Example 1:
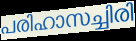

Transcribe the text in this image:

പരിഹാസച്ചിരി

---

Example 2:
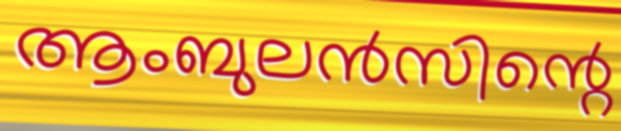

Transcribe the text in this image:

ആംബുലൻസിന്റെ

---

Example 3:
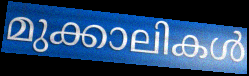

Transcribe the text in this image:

മുക്കാലികൾ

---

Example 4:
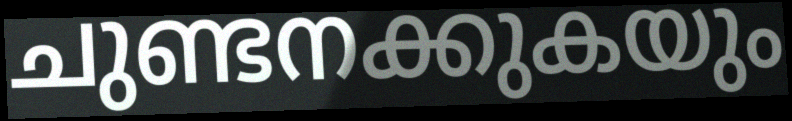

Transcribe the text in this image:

ചുണ്ടനക്കുകയും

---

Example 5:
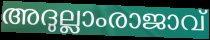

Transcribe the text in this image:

അദുല്ലാംരാജാവ്